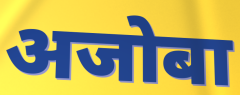
अजोबा